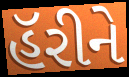
હૅરીને